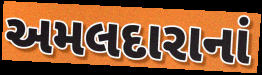
અમલદારાનાં